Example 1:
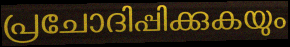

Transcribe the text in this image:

പ്രചോദിപ്പിക്കുകയും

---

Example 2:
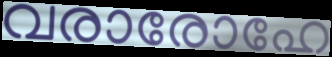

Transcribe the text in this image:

വരാരോഹേ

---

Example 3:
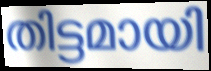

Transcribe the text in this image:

തിട്ടമായി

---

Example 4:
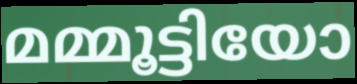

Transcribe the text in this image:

മമ്മൂട്ടിയോ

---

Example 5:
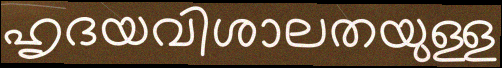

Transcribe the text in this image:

ഹൃദയവിശാലതയുള്ള